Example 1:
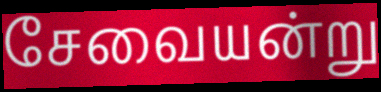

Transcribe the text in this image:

சேவையன்று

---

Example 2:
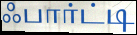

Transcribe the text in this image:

ஃபார்ட்டி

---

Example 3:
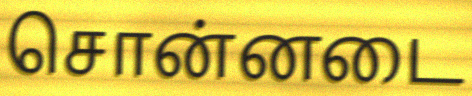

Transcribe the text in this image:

சொன்னடை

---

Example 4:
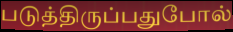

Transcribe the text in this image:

படுத்திருப்பதுபோல்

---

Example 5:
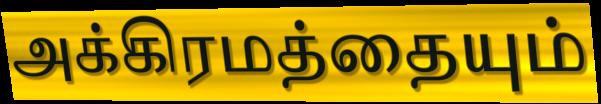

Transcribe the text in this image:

அக்கிரமத்தையும்